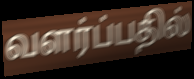
வளர்ப்பதில்